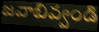
జవాబివ్వండి